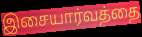
இசையார்வத்தை